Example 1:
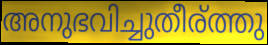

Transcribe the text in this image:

അനുഭവിച്ചുതീര്ത്തു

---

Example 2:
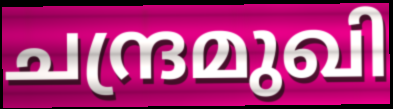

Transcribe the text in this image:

ചന്ദ്രമുഖി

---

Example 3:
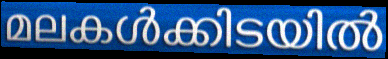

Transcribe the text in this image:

മലകൾക്കിടയിൽ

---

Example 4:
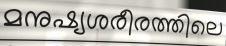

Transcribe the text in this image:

മനുഷ്യശരീരത്തിലെ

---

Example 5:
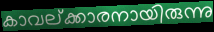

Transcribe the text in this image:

കാവല്ക്കാരനായിരുന്നു